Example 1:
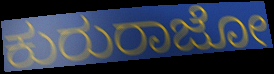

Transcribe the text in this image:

ಕುರುರಾಜೋ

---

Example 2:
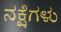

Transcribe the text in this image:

ನಕ್ಷೆಗಳು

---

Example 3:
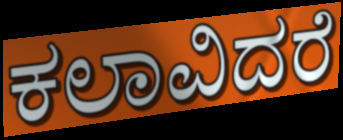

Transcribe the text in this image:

ಕಲಾವಿದರೆ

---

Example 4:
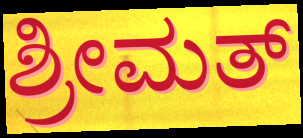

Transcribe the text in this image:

ಶ್ರೀಮತ್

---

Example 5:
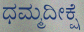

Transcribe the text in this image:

ಧಮ್ಮದೀಕ್ಷೆ